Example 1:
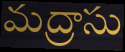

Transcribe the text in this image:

మద్రాసు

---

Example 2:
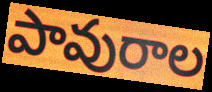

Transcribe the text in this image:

పావురాల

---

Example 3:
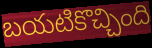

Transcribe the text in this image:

బయటికొచ్చింది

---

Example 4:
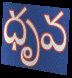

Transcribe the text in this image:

ధృవ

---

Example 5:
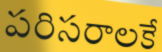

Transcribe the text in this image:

పరిసరాలకే